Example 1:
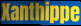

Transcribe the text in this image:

Xanthippe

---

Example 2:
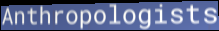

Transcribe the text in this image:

Anthropologists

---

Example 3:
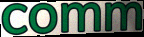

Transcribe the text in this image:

comm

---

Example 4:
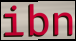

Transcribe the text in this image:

ibn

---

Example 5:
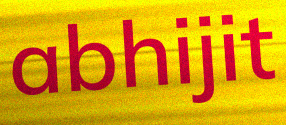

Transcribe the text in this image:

abhijit